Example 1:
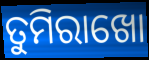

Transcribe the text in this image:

ତୁମିରାଖୋ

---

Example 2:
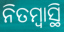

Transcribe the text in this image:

ନିତମ୍ବାସ୍ଥି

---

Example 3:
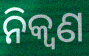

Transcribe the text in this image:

ନିକ୍ୱଣ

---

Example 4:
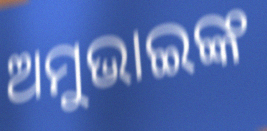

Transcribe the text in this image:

ଅମୁଭାଇଙ୍କ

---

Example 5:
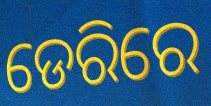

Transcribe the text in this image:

ଡେରିରେ